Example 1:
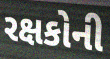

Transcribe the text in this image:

રક્ષકોની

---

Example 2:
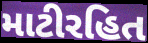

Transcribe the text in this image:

માટીરહિત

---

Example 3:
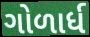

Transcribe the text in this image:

ગોળાર્ધ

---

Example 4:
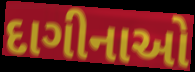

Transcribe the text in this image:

દાગીનાઓ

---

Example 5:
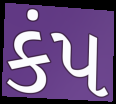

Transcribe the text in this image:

કંપ